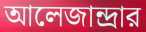
আলেজান্দ্রার